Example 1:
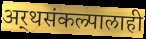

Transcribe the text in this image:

अर्थसंकल्पालाही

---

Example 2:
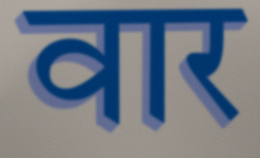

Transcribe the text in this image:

वार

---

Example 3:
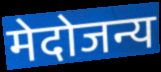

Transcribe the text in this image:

मेदोजन्य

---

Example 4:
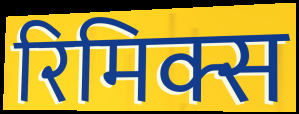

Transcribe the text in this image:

रिमिक्स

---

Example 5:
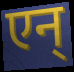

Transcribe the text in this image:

एन्